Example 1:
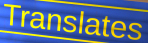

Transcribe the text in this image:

Translates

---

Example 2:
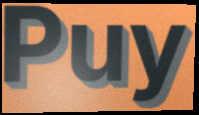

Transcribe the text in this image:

Puy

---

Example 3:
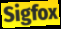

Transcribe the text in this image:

Sigfox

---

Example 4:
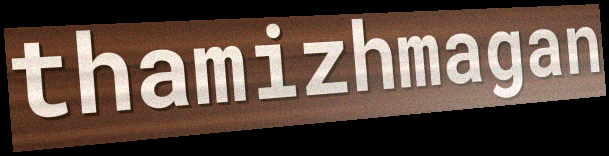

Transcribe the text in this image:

thamizhmagan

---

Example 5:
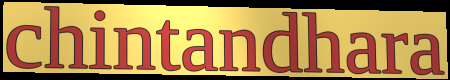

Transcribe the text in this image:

chintandhara